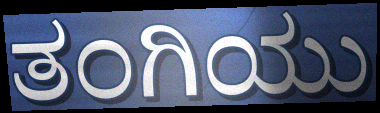
ತಂಗಿಯು